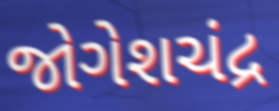
જોગેશચંદ્ર